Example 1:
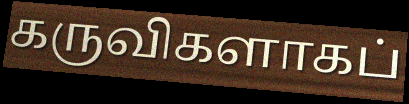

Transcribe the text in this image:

கருவிகளாகப்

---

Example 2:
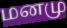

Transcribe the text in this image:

மனமு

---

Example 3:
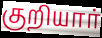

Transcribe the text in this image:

குறியார்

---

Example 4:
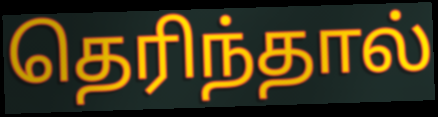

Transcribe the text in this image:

தெரிந்தால்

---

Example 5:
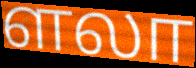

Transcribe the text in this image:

ளலா